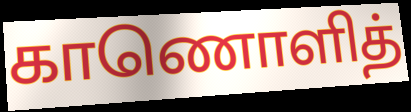
காணொளித்